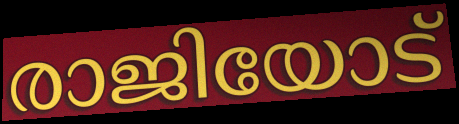
രാജിയോട്